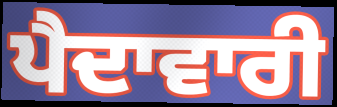
ਪੈਦਾਵਾਰੀ